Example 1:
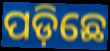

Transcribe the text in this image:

ପଡ଼ିଛେ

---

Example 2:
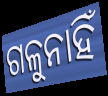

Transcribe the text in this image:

ଗଳୁନାହିଁ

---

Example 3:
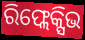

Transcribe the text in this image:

ରିଫ୍ଲେକ୍ସିଭ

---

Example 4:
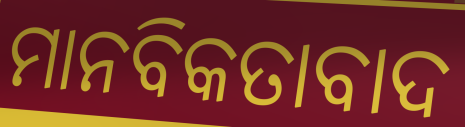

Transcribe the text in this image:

ମାନବିକତାବାଦ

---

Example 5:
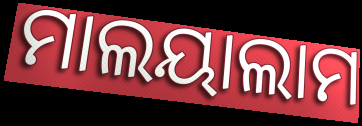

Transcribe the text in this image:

ମାଲୟାଲାମ